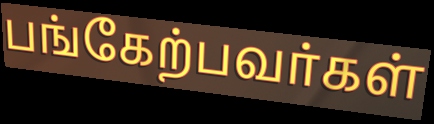
பங்கேற்பவர்கள்